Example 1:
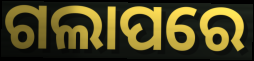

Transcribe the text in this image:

ଗଲାପରେ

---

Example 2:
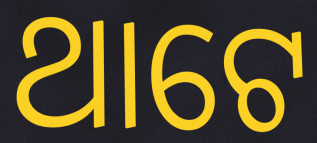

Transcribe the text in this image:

ଥାଟେ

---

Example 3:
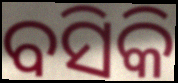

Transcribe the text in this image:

ବସିକି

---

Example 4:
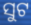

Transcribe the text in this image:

ସୁଟ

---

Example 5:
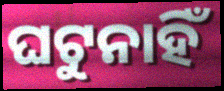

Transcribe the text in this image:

ଘଟୁନାହିଁ